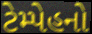
ટેમ્પેહનો